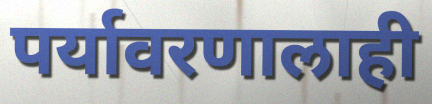
पर्यावरणालाही